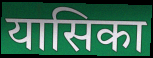
यासिका